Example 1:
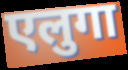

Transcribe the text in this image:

एलुगा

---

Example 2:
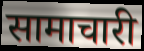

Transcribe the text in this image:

सामाचारी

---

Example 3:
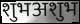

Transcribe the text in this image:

शुभअशुभ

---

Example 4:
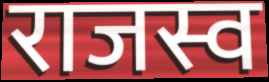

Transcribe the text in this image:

राजस्व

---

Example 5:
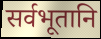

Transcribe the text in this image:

सर्वभूतानि